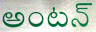
అంటన్